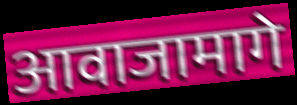
आवाजामागे